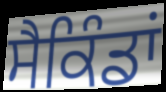
ਸੈਕਿੰਡਾਂ